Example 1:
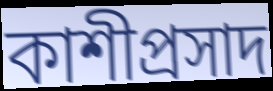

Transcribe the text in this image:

কাশীপ্রসাদ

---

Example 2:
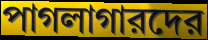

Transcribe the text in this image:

পাগলাগারদের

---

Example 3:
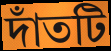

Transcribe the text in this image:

দাঁতটি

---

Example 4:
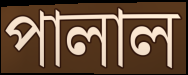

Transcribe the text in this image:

পালাল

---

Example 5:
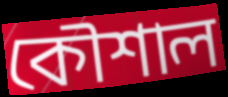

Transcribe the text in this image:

কৌশাল